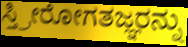
ಸ್ತ್ರೀರೋಗತಜ್ಞರನ್ನು